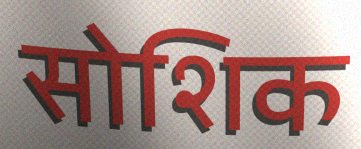
सोशिक